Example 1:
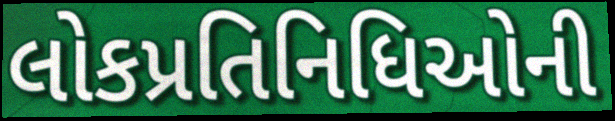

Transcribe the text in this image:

લોકપ્રતિનિધિઓની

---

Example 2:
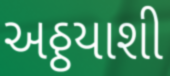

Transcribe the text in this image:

અઠ્ઠયાશી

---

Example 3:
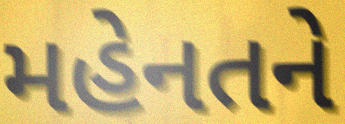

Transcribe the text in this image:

મહેનતને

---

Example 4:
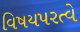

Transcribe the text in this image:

વિષયપરત્વે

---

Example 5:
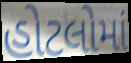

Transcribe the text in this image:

હોટલોમાં